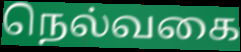
நெல்வகை